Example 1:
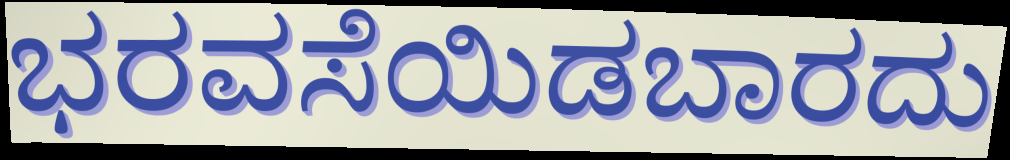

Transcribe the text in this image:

ಭರವಸೆಯಿಡಬಾರದು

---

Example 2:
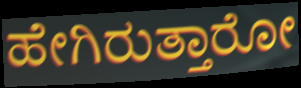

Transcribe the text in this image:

ಹೇಗಿರುತ್ತಾರೋ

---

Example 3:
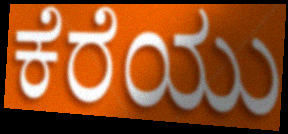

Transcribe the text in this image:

ಕೆರೆಯು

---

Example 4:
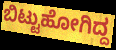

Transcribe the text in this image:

ಬಿಟ್ಟುಹೋಗಿದ್ದ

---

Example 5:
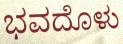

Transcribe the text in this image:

ಭವದೊಳು